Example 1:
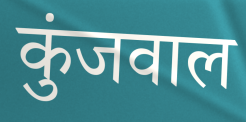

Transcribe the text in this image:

कुंजवाल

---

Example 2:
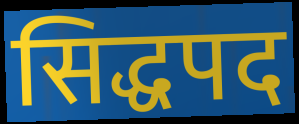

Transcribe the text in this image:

सिद्धपद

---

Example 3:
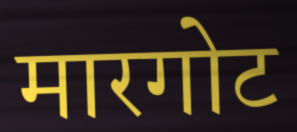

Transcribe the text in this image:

मारगोट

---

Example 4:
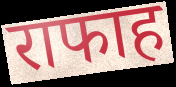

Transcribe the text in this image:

राफाह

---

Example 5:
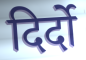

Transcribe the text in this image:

दिर्दो